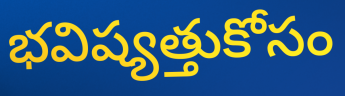
భవిష్యత్తుకోసం